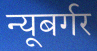
न्यूबर्गर